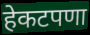
हेकटपणा